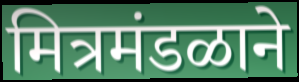
मित्रमंडळाने